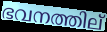
ഭവനത്തില്